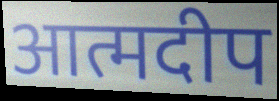
आत्मदीप